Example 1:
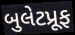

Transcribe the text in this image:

બુલેટપ્રૂફ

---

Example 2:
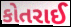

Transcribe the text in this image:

કોતરાઈ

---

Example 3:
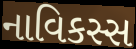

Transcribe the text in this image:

નાવિકસ્સ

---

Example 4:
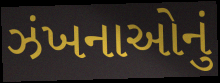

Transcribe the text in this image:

ઝંખનાઓનું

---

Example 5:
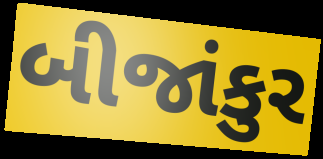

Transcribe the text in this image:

બીજાંકુર